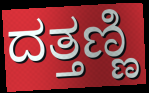
ದತ್ತಣ್ಣಿ